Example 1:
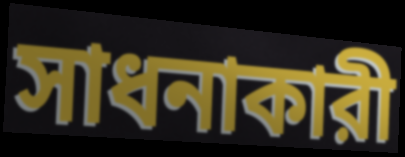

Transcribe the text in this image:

সাধনাকারী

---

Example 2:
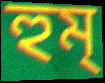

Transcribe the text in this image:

হুম্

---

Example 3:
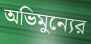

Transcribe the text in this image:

অভিমুন্যের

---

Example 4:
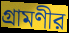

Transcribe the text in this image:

গ্রামণীর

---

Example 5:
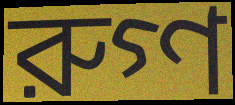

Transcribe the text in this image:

রুগ্ণ